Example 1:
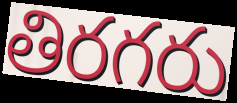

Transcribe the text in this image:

తిరగరు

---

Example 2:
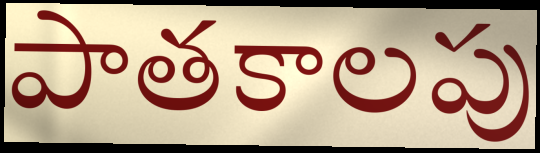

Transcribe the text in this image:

పాతకాలపు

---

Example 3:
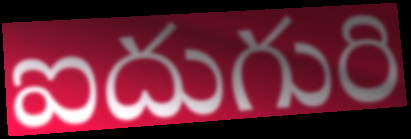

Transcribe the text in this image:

ఐదుగురి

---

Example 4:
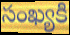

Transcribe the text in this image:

సంఖ్యకి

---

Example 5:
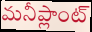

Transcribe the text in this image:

మనీప్లాంట్